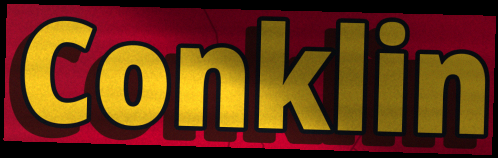
Conklin